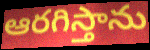
ఆరగిస్తాను